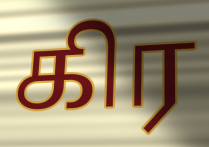
கிர